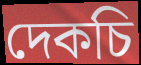
দেকচি